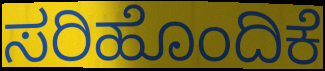
ಸರಿಹೊಂದಿಕೆ